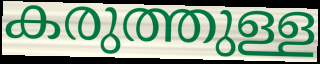
കരുത്തുള്ള